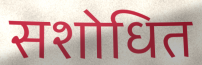
सशोधित